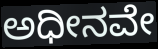
ಅಧೀನವೇ